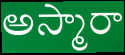
అస్మారా